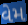
વેમ